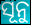
ସୂନୁ